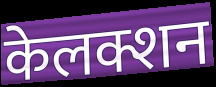
केलक्शन